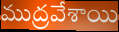
ముద్రవేశాయి